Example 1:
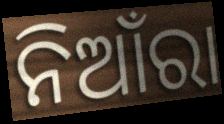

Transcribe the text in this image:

ନିଆଁରା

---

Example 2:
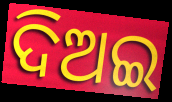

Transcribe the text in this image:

ଦିଅଇ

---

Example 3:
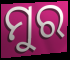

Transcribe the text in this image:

ମୁର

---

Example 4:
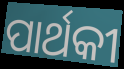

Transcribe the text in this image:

ପାର୍ଥକୀ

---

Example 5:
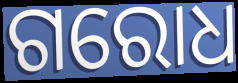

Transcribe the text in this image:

ଗରୋଧ